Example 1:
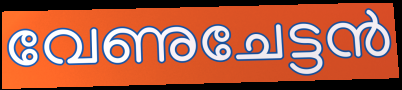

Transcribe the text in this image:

വേണുചേട്ടൻ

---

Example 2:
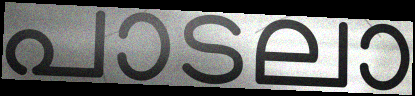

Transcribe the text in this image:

പാടലാ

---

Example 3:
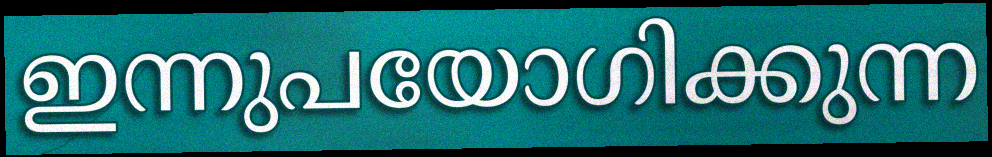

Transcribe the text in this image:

ഇന്നുപയോഗിക്കുന്ന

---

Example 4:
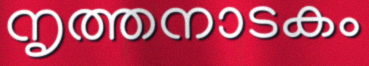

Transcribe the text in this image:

നൃത്തനാടകം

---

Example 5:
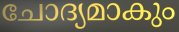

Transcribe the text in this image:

ചോദ്യമാകും